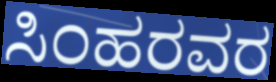
ಸಿಂಹರವರ